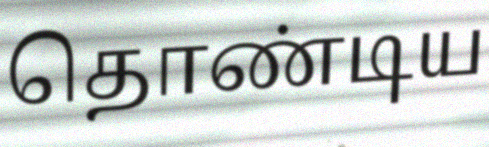
தொண்டிய